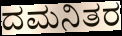
ದಮನಿತರ